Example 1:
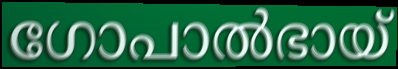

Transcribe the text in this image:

ഗോപാൽഭായ്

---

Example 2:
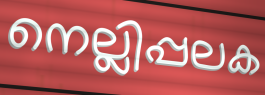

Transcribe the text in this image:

നെല്ലിപ്പലക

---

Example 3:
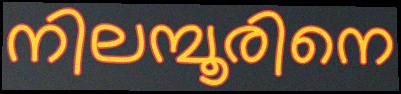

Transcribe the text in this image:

നിലമ്പൂരിനെ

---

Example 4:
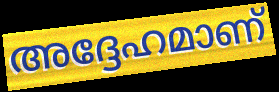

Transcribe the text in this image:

അദ്ദേഹമാണ്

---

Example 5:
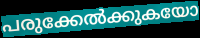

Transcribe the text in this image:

പരുക്കേൽക്കുകയോ